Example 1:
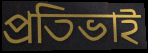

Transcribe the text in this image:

প্রতিভাই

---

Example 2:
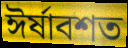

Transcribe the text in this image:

ঈর্ষাবশত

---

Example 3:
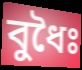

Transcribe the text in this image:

বুধৈঃ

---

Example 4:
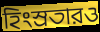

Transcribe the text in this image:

হিংস্রতারও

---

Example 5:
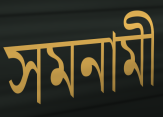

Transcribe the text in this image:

সমনামী